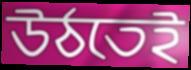
উঠতেই